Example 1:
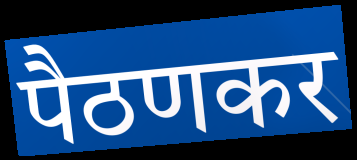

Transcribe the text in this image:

पैठणकर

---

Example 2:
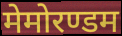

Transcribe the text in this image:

मेमोरण्डम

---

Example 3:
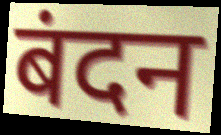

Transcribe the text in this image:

बंदन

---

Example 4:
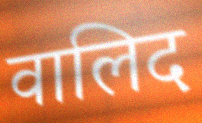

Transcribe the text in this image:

वालिद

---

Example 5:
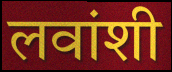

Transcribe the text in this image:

लवांशी